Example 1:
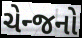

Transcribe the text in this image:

ચેન્જનો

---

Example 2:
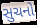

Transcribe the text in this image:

સુચનો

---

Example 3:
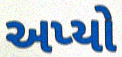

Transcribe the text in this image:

અપ્યો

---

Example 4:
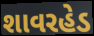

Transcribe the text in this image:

શાવરહેડ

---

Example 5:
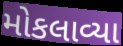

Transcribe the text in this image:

મોકલાવ્યા